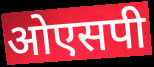
ओएसपी